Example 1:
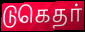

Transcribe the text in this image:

டுகெதர்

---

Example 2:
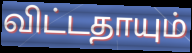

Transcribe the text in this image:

விட்டதாயும்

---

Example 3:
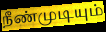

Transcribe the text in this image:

நீண்முடியும்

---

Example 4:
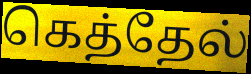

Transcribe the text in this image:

கெத்தேல்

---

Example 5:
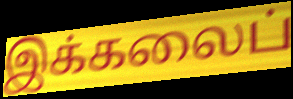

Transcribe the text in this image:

இக்கலைப்